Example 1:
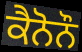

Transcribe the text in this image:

ਕੈਨੋਨੌ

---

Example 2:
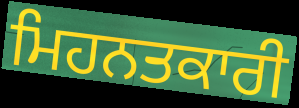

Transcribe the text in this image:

ਮਿਹਨਤਕਾਰੀ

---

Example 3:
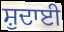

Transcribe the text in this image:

ਸ਼ੁਦਾਈ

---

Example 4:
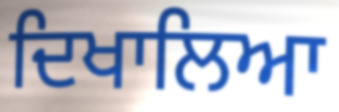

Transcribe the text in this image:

ਦਿਖਾਲਿਆ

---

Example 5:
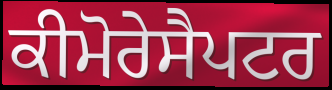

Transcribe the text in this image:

ਕੀਮੋਰੇਸੈਪਟਰ